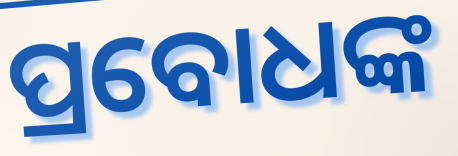
ପ୍ରବୋଧଙ୍କ